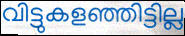
വിട്ടുകളഞ്ഞിട്ടില്ല